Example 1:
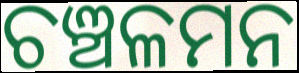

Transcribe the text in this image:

ଚଞ୍ଚଳମନ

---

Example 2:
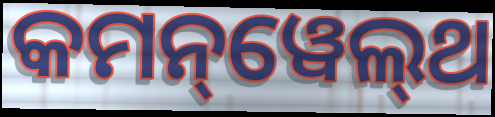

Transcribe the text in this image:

କମନ୍‌ୱେଲ୍‌ଥ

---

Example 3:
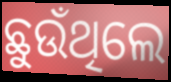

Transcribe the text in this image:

ଛୁଉଁଥିଲେ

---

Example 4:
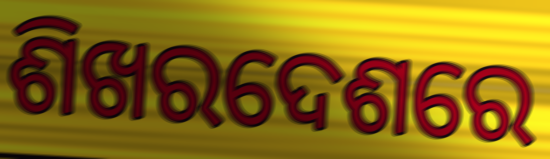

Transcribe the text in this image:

ଶିଖରଦେଶରେ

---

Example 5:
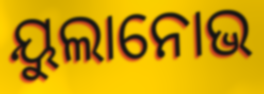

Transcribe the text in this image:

ୟୁଲାନୋଭ